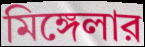
মিঙ্গেলার